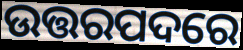
ଉତ୍ତରପଦରେ